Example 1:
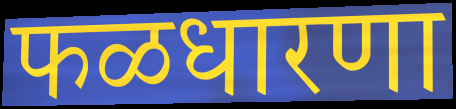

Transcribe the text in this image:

फळधारणा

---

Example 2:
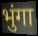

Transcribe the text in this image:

भुंगा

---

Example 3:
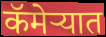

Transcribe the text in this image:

कॅमेऱ्यात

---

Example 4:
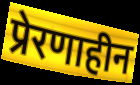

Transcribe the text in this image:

प्रेरणाहीन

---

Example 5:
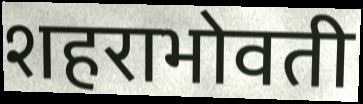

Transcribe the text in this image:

शहराभोवती